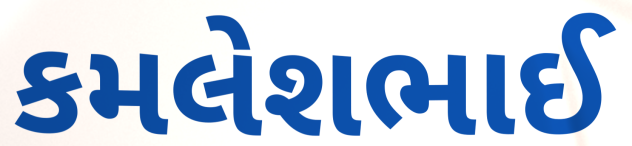
કમલેશભાઈ